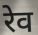
रेव